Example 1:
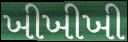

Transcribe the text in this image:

ખીખીખી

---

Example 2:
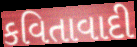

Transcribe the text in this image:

કવિતાવાદી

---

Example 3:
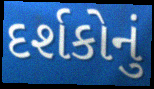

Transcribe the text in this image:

દર્શકોનું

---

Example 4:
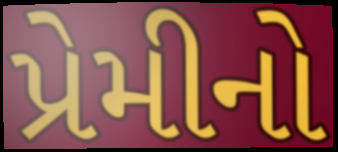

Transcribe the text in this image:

પ્રેમીનો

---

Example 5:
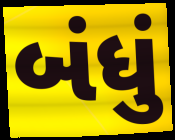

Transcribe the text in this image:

બંધું